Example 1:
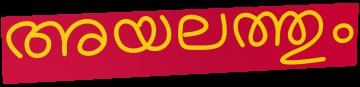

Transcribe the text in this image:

അയലത്തും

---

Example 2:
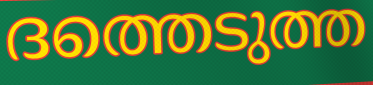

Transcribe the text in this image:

ദത്തെടുത്ത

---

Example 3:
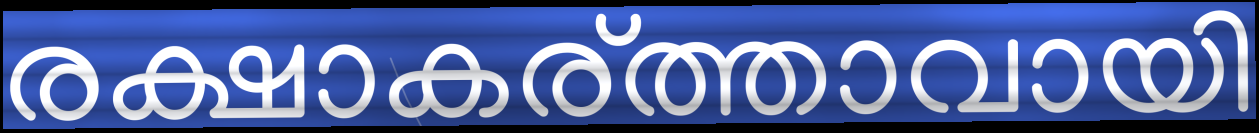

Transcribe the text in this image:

രക്ഷാകര്ത്താവായി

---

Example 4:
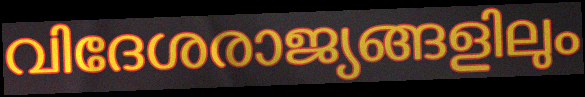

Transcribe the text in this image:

വിദേശരാജ്യങ്ങളിലും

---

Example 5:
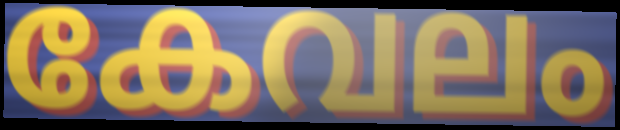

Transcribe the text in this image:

കേവലം